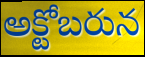
అక్టోబరున